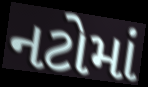
નટોમાં